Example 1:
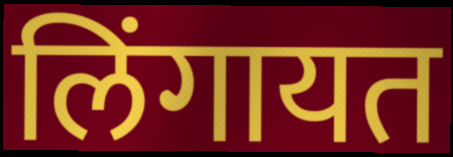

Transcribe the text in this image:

लिंगायत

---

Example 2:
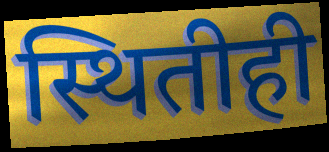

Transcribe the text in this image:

स्थितीही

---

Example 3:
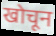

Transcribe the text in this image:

खोचून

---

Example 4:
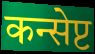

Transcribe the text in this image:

कन्सेप्ट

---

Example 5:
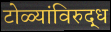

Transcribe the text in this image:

टोळ्यांविरुद्ध